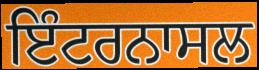
ਇੰਟਰਨਾਸਲ